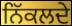
ਨਿੱਕਲਦੇ